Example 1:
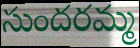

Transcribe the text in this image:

సుందరమ్మ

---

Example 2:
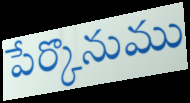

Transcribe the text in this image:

పేర్కొనుము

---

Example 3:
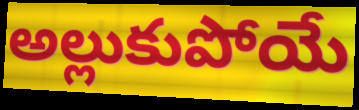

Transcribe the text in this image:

అల్లుకుపోయే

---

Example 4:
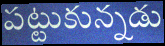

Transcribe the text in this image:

పట్టుకున్నడు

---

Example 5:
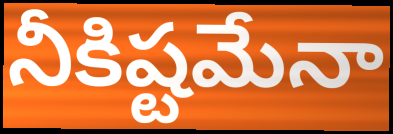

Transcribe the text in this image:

నీకిష్టమేనా